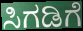
ಸಿಗಡಿಗೆ